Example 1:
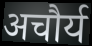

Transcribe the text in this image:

अचौर्य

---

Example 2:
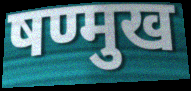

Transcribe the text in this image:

षण्मुख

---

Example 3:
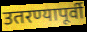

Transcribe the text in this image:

उतरण्यापूर्वी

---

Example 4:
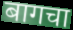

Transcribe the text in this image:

बागचा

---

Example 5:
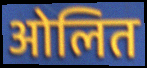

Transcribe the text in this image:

ओलित